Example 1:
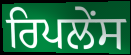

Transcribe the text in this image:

ਰਿਪਲੇਂਸ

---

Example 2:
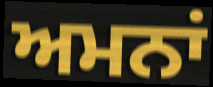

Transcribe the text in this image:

ਅਮਨਾਂ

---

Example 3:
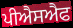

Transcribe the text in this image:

ਪੀਐਸਐਫ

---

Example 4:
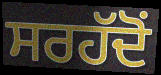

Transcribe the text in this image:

ਸਰਹੱਦੋਂ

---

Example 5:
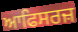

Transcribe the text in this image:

ਆਫਿਸਰਜ਼